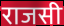
राजसी